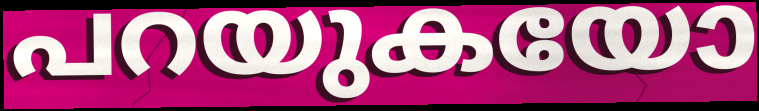
പറയുകയോ